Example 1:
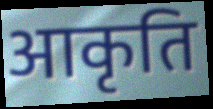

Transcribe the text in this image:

आकृति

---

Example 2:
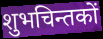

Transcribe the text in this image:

शुभचिन्तकों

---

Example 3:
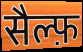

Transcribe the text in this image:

सैल्फ़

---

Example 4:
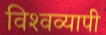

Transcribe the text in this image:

विश्‍वव्यापी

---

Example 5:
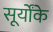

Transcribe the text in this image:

सूर्योंके